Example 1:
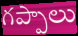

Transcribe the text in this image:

గప్పాలు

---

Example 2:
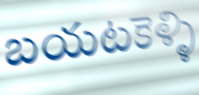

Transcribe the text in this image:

బయటకెళ్ళి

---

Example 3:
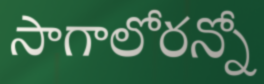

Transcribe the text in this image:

సాగాలోరన్నో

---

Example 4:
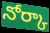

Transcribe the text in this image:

నోర్కా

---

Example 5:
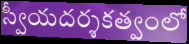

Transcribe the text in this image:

స్వీయదర్శకత్వంలో